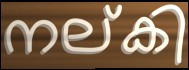
നല്കി